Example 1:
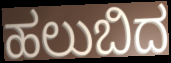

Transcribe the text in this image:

ಹಲುಬಿದ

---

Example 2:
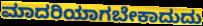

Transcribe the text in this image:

ಮಾದರಿಯಾಗಬೇಕಾದುದು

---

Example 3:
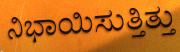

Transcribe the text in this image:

ನಿಭಾಯಿಸುತ್ತಿತ್ತು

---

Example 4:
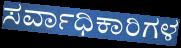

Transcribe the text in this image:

ಸರ್ವಾಧಿಕಾರಿಗಳ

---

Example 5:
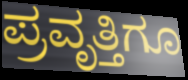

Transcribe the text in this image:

ಪ್ರವೃತ್ತಿಗೂ